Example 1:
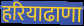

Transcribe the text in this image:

हरियाढाणा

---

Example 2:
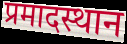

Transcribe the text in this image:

प्रमादस्थान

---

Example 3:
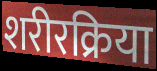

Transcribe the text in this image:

शरीरक्रिया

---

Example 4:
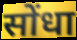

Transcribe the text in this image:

सोंधा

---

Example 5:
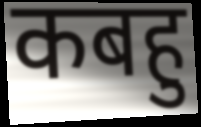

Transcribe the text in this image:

कबहु